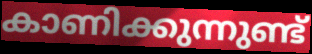
കാണിക്കുന്നുണ്ട്